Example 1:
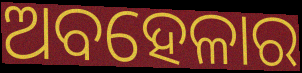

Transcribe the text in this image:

ଅବହେଳାର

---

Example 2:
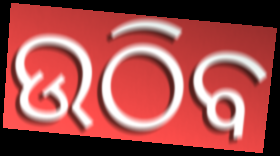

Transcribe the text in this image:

ଉଠିବ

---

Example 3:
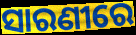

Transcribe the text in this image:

ସାରଣୀରେ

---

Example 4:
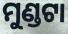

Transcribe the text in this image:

ମୁଣ୍ଡଟା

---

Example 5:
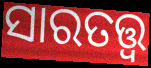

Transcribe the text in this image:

ସାରତତ୍ତ୍ଵ